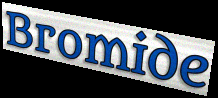
Bromide